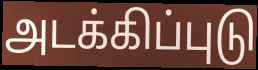
அடக்கிப்புடு